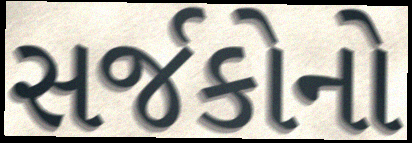
સર્જકોનો